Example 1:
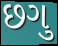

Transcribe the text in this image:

છગુ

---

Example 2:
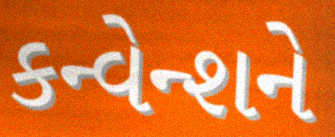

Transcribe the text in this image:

કન્વેન્શને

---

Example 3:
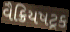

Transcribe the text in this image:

વૈક્રિયષટ્રક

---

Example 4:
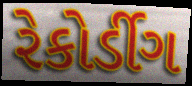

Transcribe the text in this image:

રેકોર્ડીગ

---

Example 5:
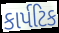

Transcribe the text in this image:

કાર્પટિક